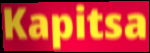
Kapitsa